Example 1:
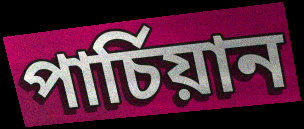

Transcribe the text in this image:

পাৰ্চিয়ান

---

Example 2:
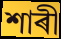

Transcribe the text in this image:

শাৰী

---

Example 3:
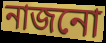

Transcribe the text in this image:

নাজনো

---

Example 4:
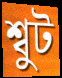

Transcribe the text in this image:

শ্বুট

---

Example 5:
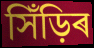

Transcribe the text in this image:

সিঁড়িৰ